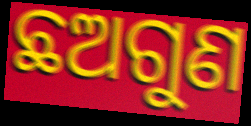
ଛଅଗୁଣ